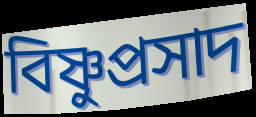
বিষ্ণুপ্রসাদ